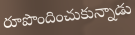
రూపొందించుకున్నాడు